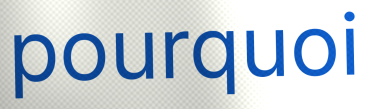
pourquoi